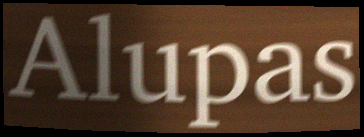
Alupas